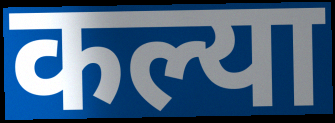
कल्या